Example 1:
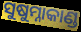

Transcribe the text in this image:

ସୁଷୁମ୍ନାକାଣ୍ଡ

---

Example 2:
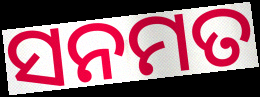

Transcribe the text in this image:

ସନମତ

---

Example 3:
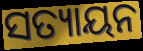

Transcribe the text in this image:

ସତ୍ୟାୟନ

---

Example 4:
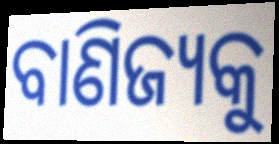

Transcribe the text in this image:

ବାଣିଜ୍ୟକୁ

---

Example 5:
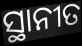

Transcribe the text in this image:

ସ୍ଥାନୀତ